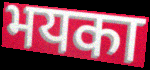
भयका